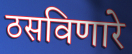
ठसविणारे